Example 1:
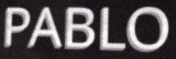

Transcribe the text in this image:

PABLO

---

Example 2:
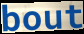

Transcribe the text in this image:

bout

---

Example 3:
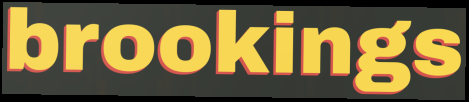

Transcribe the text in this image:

brookings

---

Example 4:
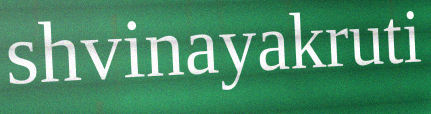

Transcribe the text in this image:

shvinayakruti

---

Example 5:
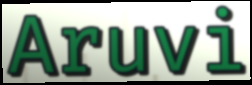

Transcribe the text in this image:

Aruvi